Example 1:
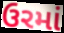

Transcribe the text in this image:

ઉરમાં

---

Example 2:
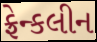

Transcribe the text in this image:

ફ્રેન્કલીન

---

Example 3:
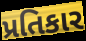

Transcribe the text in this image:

પ્રતિકાર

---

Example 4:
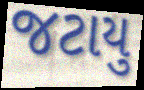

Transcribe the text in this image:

જટાયુ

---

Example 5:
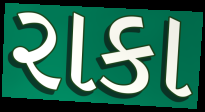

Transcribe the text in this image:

રાકા